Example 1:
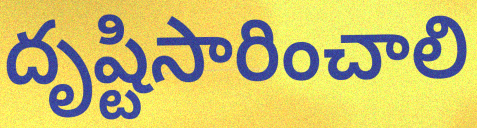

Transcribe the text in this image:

దృష్టిసారించాలి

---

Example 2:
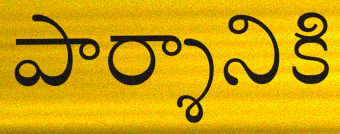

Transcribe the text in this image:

పార్శానికి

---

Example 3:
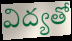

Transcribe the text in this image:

విద్యతో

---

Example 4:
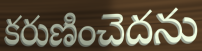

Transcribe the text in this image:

కరుణించెదను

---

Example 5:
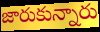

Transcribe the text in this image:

జారుకున్నారు